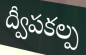
ద్వీపకల్ప